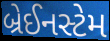
બ્રેઈનસ્ટેમ